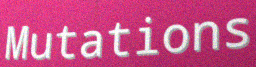
Mutations